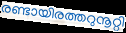
രണ്ടായിരത്തറുനൂറ്റി